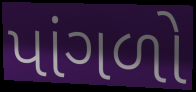
પાંગળો